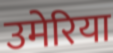
उमेरिया